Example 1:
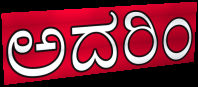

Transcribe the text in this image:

ಅದರಿಂ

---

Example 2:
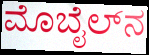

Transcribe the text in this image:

ಮೊಬೈಲ್‌ನ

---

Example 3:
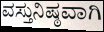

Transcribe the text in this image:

ವಸ್ತುನಿಷ್ಠವಾಗಿ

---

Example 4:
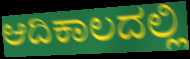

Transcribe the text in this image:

ಆದಿಕಾಲದಲ್ಲಿ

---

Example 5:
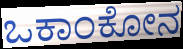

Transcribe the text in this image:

ಒಕಾಂಕೋನ